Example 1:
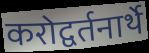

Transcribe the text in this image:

करोद्वर्तनार्थे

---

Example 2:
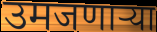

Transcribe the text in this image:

उमजणाऱ्या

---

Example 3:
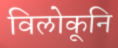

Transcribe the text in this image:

विलोकूनि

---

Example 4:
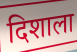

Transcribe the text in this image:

दिशाला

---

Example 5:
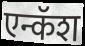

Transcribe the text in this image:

एन्कॅश